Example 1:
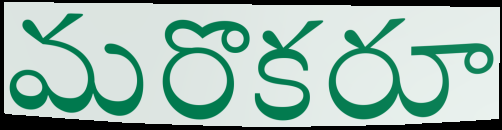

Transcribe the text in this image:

మరొకరూ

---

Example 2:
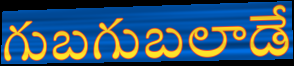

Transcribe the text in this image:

గుబగుబలాడే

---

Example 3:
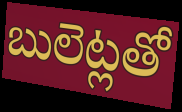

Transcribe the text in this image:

బులెట్లతో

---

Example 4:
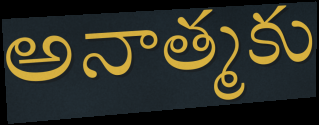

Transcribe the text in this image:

అనాత్మకు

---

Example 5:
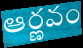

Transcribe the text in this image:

ఆర్ణవం